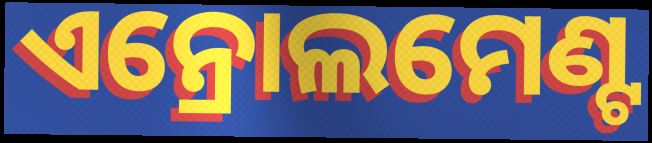
ଏନ୍ରୋଲମେଣ୍ଟ